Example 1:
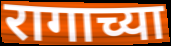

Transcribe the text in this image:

रागाच्या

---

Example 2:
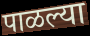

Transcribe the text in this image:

पाळल्या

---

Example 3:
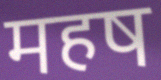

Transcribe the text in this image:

महष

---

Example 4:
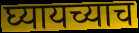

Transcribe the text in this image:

घ्यायच्याच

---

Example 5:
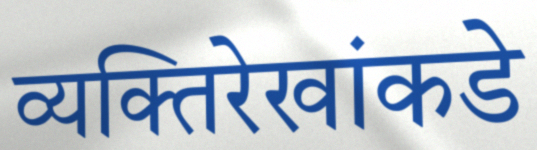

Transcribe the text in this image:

व्यक्तिरेखांकडे